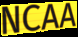
NCAA